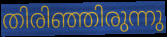
തിരിഞ്ഞിരുന്നു